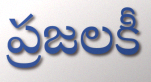
ప్రజలకీ